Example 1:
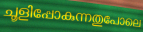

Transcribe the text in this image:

ചൂളിപ്പോകുന്നതുപോലെ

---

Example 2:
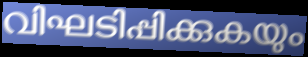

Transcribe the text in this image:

വിഘടിപ്പിക്കുകയും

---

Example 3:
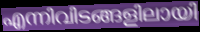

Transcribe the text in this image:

എന്നിവിടങ്ങളിലായി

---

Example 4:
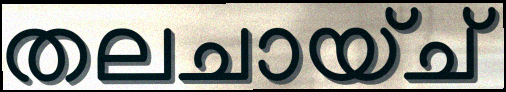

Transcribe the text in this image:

തലചായ്ച്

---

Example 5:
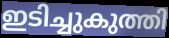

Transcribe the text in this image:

ഇടിച്ചുകുത്തി